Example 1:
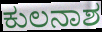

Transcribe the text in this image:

ಕುಲನಾಶ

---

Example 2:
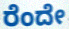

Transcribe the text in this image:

ರೆಂದೇ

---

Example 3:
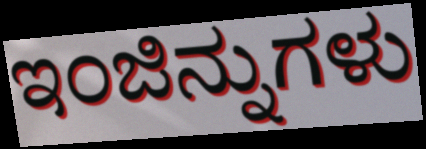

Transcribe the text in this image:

ಇಂಜಿನ್ನುಗಳು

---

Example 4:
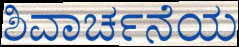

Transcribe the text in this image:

ಶಿವಾರ್ಚನೆಯ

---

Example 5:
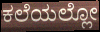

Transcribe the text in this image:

ಕಲೆಯಲ್ಲೋ